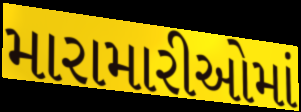
મારામારીઓમાં